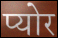
प्योर